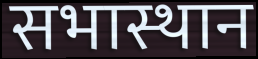
सभास्थान